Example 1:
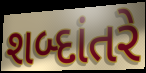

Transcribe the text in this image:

શબ્દાંતરે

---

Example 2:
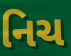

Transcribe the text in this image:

નિચ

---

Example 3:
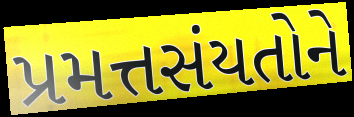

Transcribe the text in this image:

પ્રમત્તસંયતોને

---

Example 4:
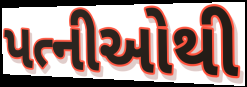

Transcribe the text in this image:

પત્નીઓથી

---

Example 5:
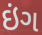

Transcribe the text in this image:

ઇંગ